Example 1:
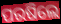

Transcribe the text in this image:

ପରଷିଲେ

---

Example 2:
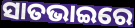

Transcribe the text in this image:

ସାତଭାଇରେ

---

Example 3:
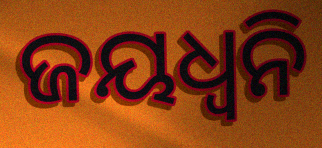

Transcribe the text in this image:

ଜୟଧ୍ୱନି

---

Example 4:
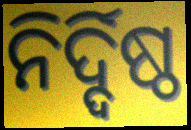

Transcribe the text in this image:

ନିର୍ଦ୍ଦିଷ୍ଠ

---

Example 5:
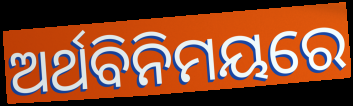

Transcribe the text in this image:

ଅର୍ଥବିନିମୟରେ